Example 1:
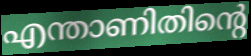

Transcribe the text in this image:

എന്താണിതിന്റെ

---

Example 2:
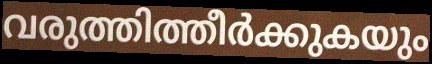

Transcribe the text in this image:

വരുത്തിത്തീർക്കുകയും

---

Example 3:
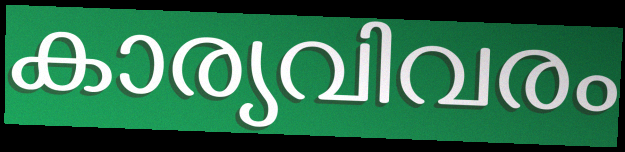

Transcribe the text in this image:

കാര്യവിവരം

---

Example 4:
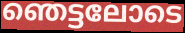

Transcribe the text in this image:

ഞെട്ടലോടെ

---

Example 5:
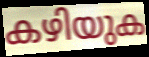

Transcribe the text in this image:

കഴിയുക